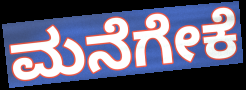
ಮನೆಗೇಕೆ